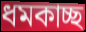
ধমকাচ্ছ